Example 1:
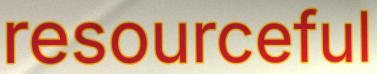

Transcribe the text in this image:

resourceful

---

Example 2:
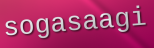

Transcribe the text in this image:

sogasaagi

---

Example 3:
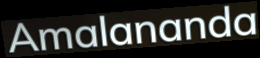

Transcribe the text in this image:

Amalananda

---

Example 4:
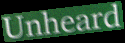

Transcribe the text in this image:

Unheard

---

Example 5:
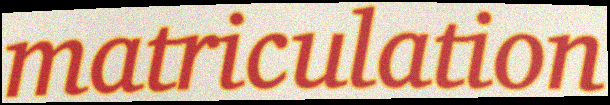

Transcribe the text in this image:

matriculation